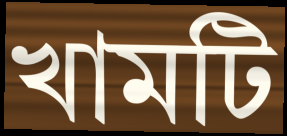
খামটি